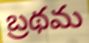
బ్రథమ